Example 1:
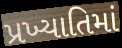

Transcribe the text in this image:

પ્રખ્યાતિમાં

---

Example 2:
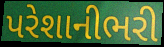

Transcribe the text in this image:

પરેશાનીભરી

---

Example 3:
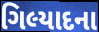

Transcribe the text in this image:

ગિલ્યાદના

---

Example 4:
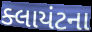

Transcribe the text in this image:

ક્લાયંટના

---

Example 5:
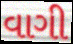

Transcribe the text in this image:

વાગી